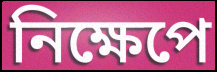
নিক্ষেপে